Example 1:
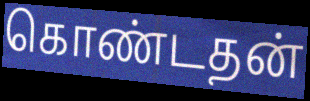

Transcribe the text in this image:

கொண்டதன்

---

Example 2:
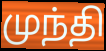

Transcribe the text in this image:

முந்தி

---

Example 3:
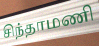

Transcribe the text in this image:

சிந்தாமணி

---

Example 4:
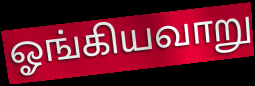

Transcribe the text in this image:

ஓங்கியவாறு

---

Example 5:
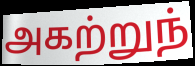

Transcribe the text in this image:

அகற்றுந்